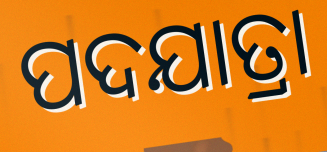
ପଦଯାତ୍ରା